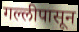
गल्लीपासून